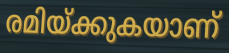
രമിയ്ക്കുകയാണ്